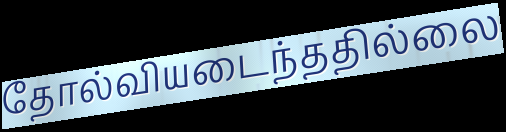
தோல்வியடைந்ததில்லை